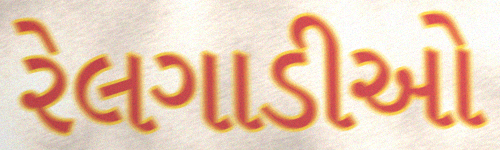
રેલગાડીઓ